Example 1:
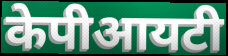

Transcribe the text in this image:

केपीआयटी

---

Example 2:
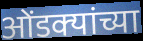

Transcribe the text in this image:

ओंडक्यांच्या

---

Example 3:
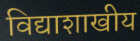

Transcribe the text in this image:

विद्याशाखीय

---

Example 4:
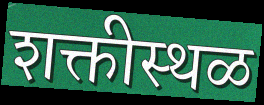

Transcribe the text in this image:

शक्तीस्थळ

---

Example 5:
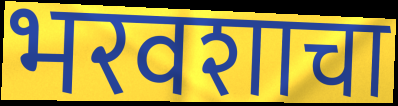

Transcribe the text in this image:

भरवशाचा